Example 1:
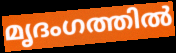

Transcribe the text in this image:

മൃദംഗത്തിൽ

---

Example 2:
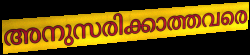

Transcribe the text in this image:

അനുസരിക്കാത്തവരെ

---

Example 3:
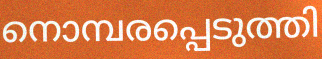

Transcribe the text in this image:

നൊമ്പരപ്പെടുത്തി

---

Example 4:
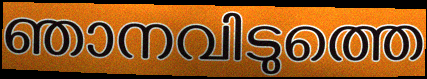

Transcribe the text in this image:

ഞാനവിടുത്തെ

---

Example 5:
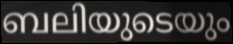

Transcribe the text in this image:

ബലിയുടെയും